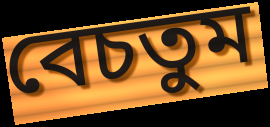
বেচতুম